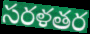
సరళతర